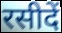
रसीदें